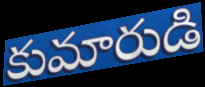
కుమారుడి